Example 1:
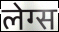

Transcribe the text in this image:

लेग्स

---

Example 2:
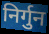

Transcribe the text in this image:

निर्गुन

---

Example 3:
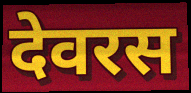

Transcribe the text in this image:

देवरस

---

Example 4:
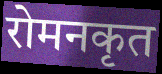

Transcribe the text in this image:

रोमनकृत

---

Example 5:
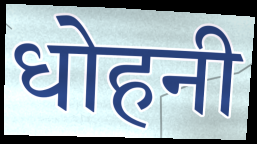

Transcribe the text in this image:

धोहनी